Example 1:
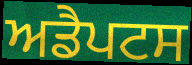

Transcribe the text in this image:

ਅਡੈਪਟਸ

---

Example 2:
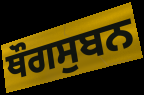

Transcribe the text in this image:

ਥੌਗਸੁਬਨ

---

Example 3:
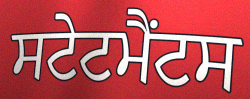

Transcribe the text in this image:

ਸਟੇਟਮੈਂਟਸ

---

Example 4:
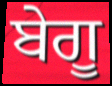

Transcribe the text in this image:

ਬੇਗੂ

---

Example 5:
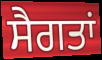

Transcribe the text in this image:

ਸੈਗਤਾਂ